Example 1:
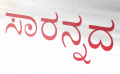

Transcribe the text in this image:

ಸಾರನ್ನದ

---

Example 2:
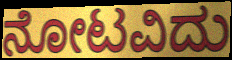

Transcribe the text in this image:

ನೋಟವಿದು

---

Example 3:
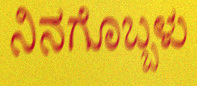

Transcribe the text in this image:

ನಿನಗೊಬ್ಬಳು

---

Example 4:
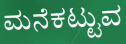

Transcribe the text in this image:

ಮನೆಕಟ್ಟುವ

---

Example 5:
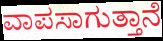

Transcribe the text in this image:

ವಾಪಸಾಗುತ್ತಾನೆ